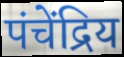
पंचेंद्रिय